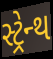
સ્ટ્રેન્થ